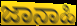
ಜಾನಾಹಿ